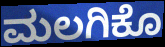
ಮಲಗಿಕೊ